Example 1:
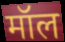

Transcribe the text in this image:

मॉल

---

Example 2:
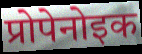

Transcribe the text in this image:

प्रोपेनोइक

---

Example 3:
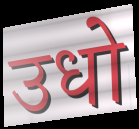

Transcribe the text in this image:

उधो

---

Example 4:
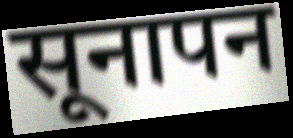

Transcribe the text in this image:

सूनापन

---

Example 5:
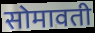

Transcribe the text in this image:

सोमावती